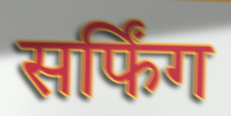
सर्फिंग